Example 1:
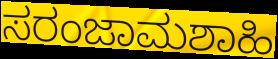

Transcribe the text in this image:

ಸರಂಜಾಮಶಾಹಿ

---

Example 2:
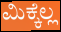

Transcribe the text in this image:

ಮಿಕ್ಕೆಲ್ಲ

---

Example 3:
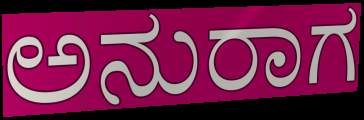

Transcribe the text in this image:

ಅನುರಾಗ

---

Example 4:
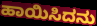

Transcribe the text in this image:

ಹಾಯಿಸಿದನು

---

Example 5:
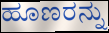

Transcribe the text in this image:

ಹೂಣರನ್ನು